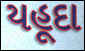
યહૂદા